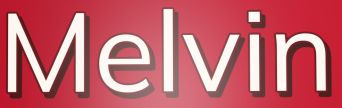
Melvin